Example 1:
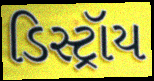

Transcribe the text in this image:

ડિસ્ટ્રૉય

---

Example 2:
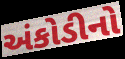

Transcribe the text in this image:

અંકોડીનો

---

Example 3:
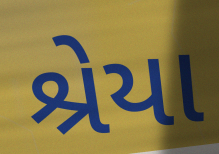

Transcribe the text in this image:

શ્રેયા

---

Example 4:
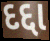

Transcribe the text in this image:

દદ્દા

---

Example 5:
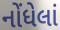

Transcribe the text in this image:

નોંધેલાં